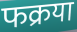
फक्रया